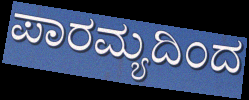
ಪಾರಮ್ಯದಿಂದ